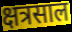
क्षत्रसाल